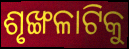
ଶୃଙ୍ଖଳାଟିକୁ